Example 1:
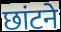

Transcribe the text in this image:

छांटने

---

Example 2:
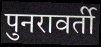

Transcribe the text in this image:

पुनरावर्ती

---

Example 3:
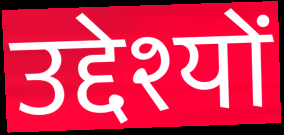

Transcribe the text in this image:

उद्देश्यों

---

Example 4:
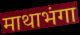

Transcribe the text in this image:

माथाभंगा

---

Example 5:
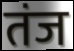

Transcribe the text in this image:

तंज